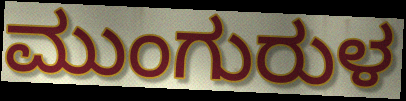
ಮುಂಗುರುಳ